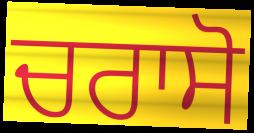
ਚਰਾਸੋ